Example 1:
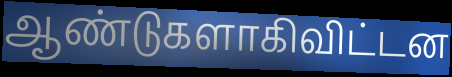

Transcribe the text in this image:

ஆண்டுகளாகிவிட்டன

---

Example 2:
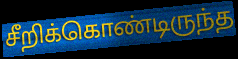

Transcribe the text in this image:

சீறிக்கொண்டிருந்த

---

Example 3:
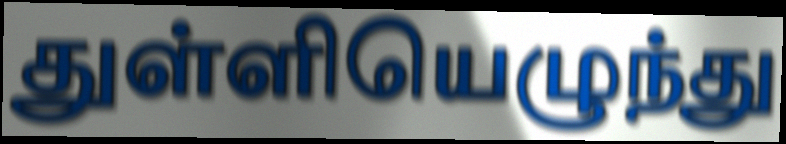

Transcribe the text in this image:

துள்ளியெழுந்து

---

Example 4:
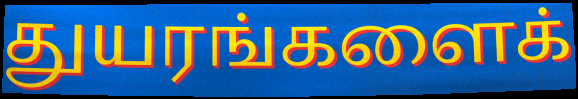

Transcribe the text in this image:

துயரங்களைக்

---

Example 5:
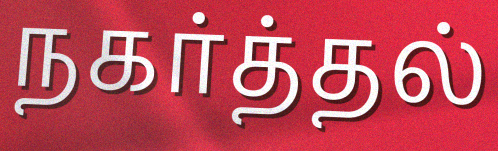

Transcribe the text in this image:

நகர்த்தல்